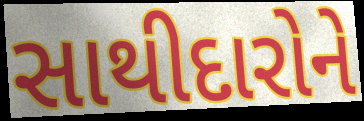
સાથીદારોને